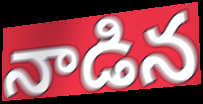
నాడిన